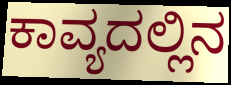
ಕಾವ್ಯದಲ್ಲಿನ